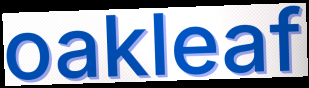
oakleaf